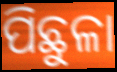
ପିଛୁଳା